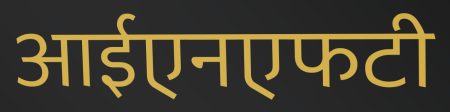
आईएनएफटी